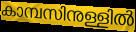
കാമ്പസിനുള്ളിൽ